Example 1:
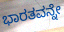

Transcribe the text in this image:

ಭಾರತವನ್ನೇ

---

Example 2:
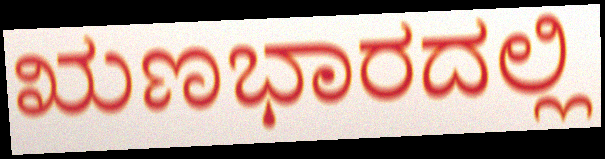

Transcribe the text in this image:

ಋಣಭಾರದಲ್ಲಿ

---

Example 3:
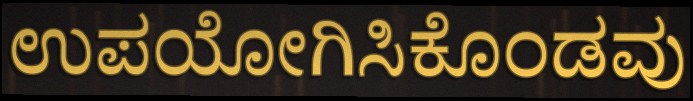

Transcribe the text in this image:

ಉಪಯೋಗಿಸಿಕೊಂಡವು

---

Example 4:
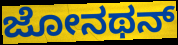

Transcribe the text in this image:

ಜೋನಥನ್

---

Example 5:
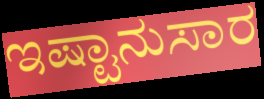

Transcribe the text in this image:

ಇಷ್ಟಾನುಸಾರ